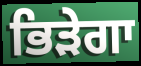
ਭਿੜੇਗਾ